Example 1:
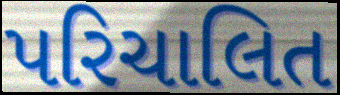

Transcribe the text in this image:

પરિચાલિત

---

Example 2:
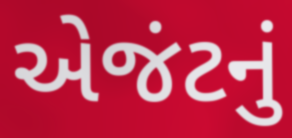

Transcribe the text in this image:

એજંટનું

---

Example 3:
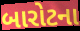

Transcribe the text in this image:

બારોટના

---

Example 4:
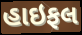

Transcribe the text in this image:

હાઇફલ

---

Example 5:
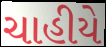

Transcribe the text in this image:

ચાહીયે